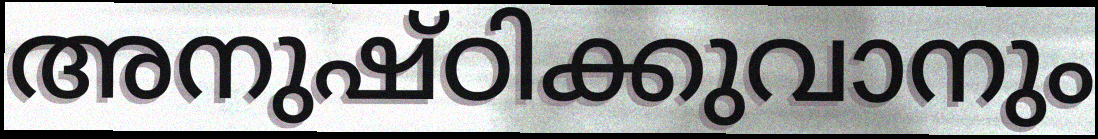
അനുഷ്ഠിക്കുവാനും